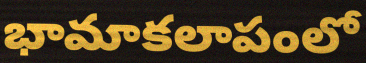
భామాకలాపంలో